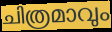
ചിത്രമാവും